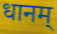
धानम्